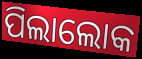
ପିଲାଲୋକ